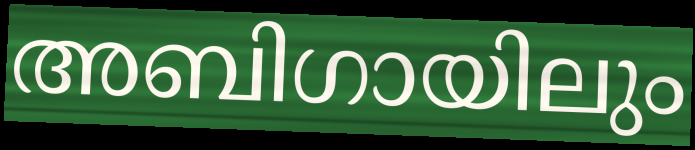
അബിഗായിലും